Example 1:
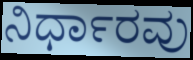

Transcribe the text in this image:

ನಿರ್ಧಾರವು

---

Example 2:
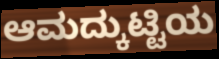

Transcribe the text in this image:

ಆಮದ್ಕುಟ್ಟಿಯ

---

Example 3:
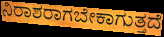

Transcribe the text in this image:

ನಿರಾಶರಾಗಬೇಕಾಗುತ್ತದೆ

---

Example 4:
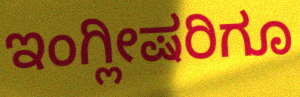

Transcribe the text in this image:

ಇಂಗ್ಲೀಷರಿಗೂ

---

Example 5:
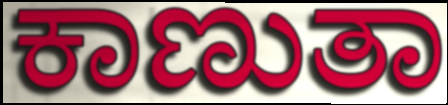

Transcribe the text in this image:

ಕಾಣುತಾ